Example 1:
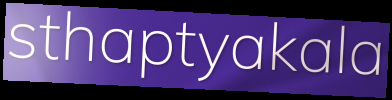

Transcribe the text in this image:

sthaptyakala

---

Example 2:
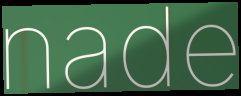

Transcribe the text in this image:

nade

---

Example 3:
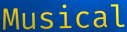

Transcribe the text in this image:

Musical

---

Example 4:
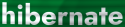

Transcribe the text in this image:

hibernate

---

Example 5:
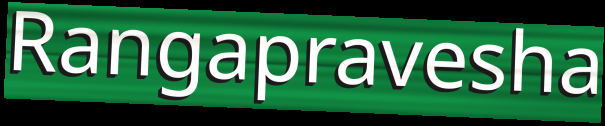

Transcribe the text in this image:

Rangapravesha